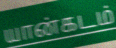
யான்கடம்